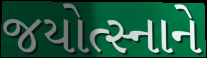
જયોત્સ્નાને